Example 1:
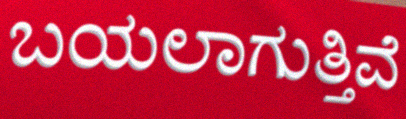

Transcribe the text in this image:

ಬಯಲಾಗುತ್ತಿವೆ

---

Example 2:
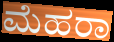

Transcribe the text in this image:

ಮೆಹರಾ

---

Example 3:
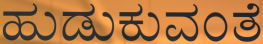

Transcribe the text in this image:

ಹುಡುಕುವಂತೆ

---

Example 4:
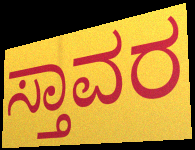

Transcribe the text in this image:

ಸ್ತಾವರ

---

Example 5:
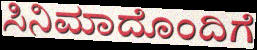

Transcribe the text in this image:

ಸಿನಿಮಾದೊಂದಿಗೆ